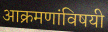
आक्रमणांविषयी